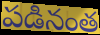
పడినంత